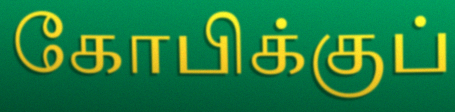
கோபிக்குப்